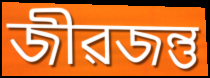
জীৱজন্তু